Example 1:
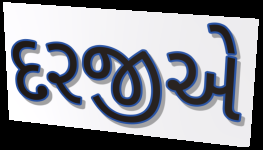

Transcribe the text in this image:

દરજીએ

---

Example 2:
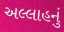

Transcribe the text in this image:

અલ્લાહનું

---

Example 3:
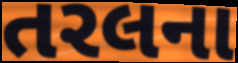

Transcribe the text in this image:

તરલના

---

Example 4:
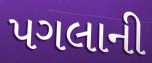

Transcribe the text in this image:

પગલાની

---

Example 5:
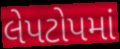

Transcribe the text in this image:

લેપટોપમાં